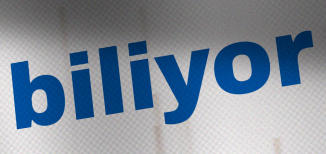
biliyor